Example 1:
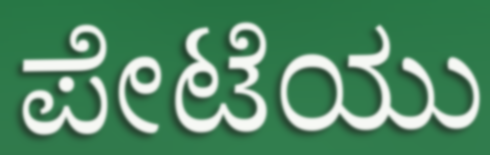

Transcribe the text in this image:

ಪೇಟೆಯು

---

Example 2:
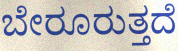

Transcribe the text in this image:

ಬೇರೂರುತ್ತದೆ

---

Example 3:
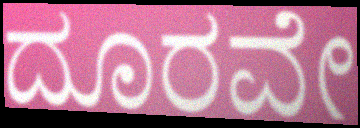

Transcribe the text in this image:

ದೂರವೇ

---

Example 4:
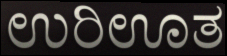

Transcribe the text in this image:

ಉರಿಊತ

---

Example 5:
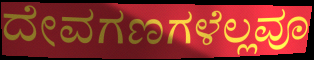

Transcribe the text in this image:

ದೇವಗಣಗಳೆಲ್ಲವೂ